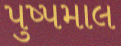
પુષ્પમાલ